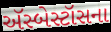
ઍસ્બેસ્ટૉસના